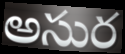
అసుర